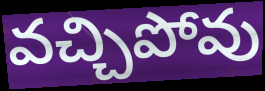
వచ్చిపోవు